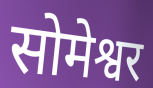
सोमेश्वर